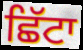
ਛਿੱਟਾ